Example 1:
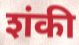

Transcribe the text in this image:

शंकी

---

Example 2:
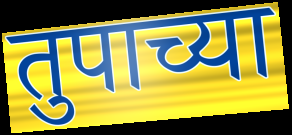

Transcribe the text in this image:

तुपाच्या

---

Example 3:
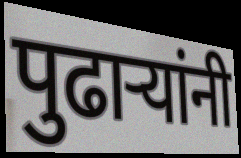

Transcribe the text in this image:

पुढाऱ्यांनी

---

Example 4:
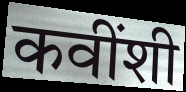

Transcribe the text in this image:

कवींशी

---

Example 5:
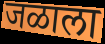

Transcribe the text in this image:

जळाला